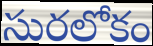
సురలోకం